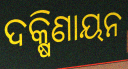
ଦକ୍ଷିଣାୟନ